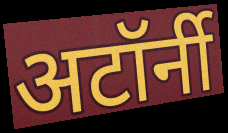
अटॉर्नी